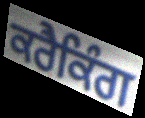
ਕਰੈਕਿੰਗ